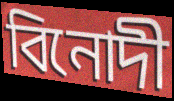
বিনোদী